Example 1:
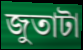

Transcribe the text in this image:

জুতাটা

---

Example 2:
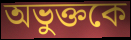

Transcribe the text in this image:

অভুক্তকে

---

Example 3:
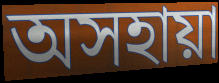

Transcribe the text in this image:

অসহায়া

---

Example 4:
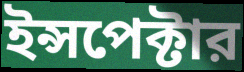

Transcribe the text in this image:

ইন্সপেক্টার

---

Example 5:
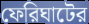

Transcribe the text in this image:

ফেরিঘাটের